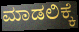
ಮಾಡಲಿಕ್ಕೆ